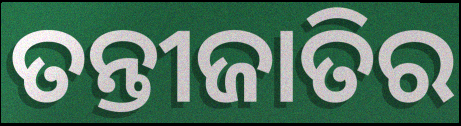
ତନ୍ତୀଜାତିର